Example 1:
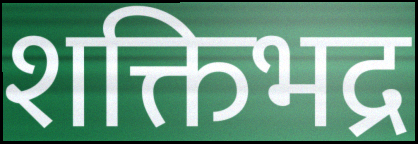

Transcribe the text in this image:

शक्तिभद्र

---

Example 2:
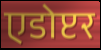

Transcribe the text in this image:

एडोप्टर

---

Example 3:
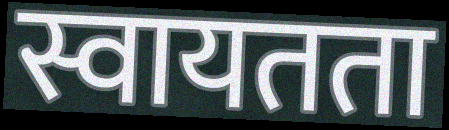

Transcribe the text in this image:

स्वायतता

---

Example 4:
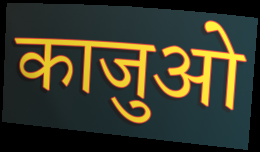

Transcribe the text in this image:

काजुओ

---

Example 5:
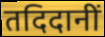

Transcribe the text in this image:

तदिदानीं